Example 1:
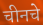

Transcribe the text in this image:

चीनचे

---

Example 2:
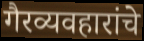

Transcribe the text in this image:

गैरव्यवहारांचे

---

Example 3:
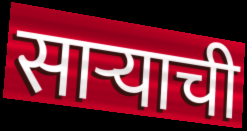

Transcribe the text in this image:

सार्‍याची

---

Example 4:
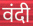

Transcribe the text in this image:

वंदी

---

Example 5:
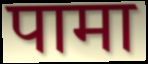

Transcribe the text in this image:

पामा